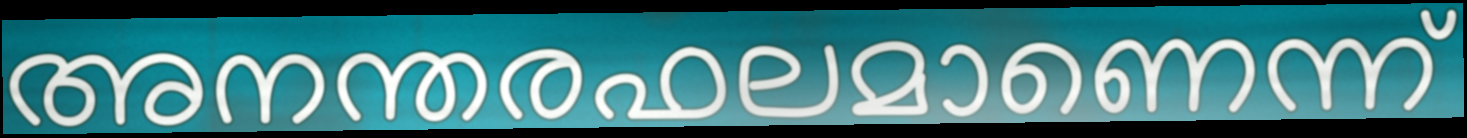
അനന്തരഫലമാണെന്ന്